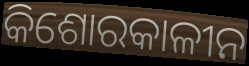
କିଶୋରକାଳୀନ